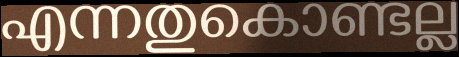
എന്നതുകൊണ്ടല്ല